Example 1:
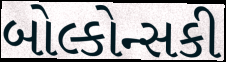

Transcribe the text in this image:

બોલ્કોન્સકી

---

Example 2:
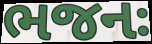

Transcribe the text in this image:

ભજનઃ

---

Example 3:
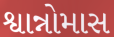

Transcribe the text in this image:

શ્વાન્નોમાસ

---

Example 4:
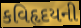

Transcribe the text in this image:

કવિહૃદયની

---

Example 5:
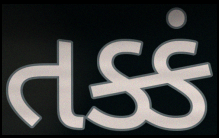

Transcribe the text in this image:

તક્કં